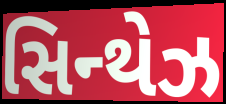
સિન્થેઝ